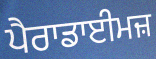
ਪੈਰਾਡਾਈਮਜ਼